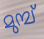
മുമ്പ്